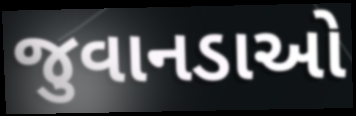
જુવાનડાઓ